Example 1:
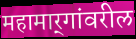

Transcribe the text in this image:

महामार्गांवरील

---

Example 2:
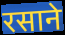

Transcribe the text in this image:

रसाने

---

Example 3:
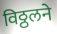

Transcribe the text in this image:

विठ्ठलने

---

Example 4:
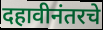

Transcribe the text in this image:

दहावीनंतरचे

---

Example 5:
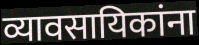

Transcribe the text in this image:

व्यावसायिकांना